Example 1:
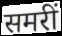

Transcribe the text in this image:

समरीं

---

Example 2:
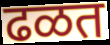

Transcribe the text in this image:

ढळत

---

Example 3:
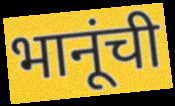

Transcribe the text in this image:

भानूंची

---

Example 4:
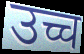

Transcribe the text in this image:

उच्च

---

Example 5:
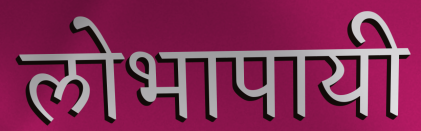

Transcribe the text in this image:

लोभापायी